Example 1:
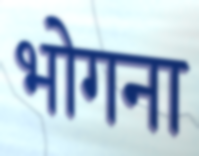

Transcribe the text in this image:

भोगना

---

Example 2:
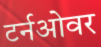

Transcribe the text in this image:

टर्नओवर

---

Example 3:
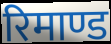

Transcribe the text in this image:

रिमाण्ड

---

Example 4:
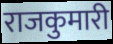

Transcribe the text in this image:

राजकुमारी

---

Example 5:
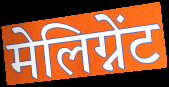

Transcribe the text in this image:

मेलिग्नेंट